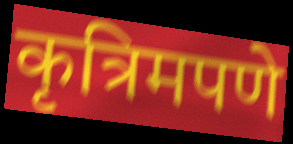
कृत्रिमपणे